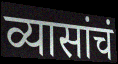
व्यासांचं